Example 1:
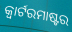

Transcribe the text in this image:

କ୍ୱାର୍ଟରମାଷ୍ଟର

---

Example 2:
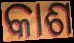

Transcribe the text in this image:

କାଶ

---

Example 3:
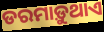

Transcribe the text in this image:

ଡରମାଡ଼ୁଥାଏ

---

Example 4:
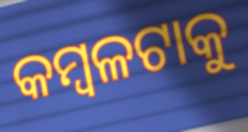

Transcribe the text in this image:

କମ୍ବଳଟାକୁ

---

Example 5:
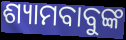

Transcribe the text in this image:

ଶ୍ୟାମବାବୁଙ୍କ